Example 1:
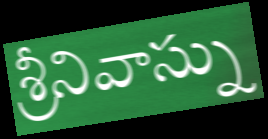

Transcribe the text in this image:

శ్రీనివాస్ను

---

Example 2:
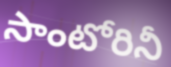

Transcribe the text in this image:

సాంటోరినీ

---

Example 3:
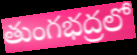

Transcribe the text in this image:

తుంగభద్రలో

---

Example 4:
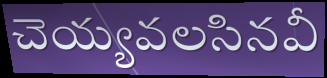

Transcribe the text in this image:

చెయ్యవలసినవీ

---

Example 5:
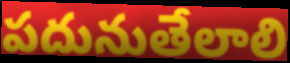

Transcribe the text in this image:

పదునుతేలాలి